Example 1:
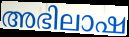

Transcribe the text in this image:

അഭിലാഷ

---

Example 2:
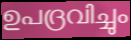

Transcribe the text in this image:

ഉപദ്രവിച്ചും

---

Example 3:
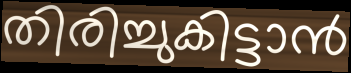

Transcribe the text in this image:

തിരിച്ചുകിട്ടാൻ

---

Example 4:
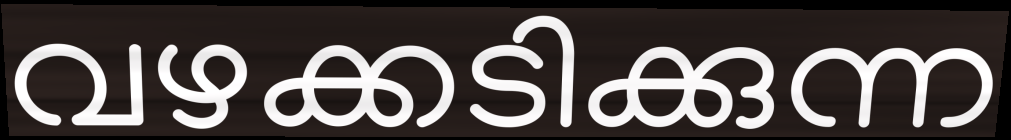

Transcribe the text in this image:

വഴക്കടിക്കുന്ന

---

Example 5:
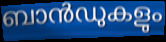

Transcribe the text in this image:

ബാൻഡുകളും